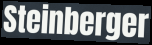
Steinberger